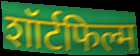
शॉर्टफिल्म